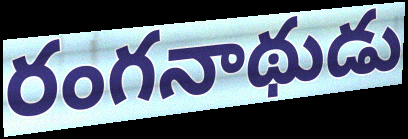
రంగనాథుడు